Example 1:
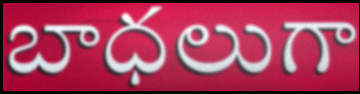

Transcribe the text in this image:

బాధలుగా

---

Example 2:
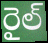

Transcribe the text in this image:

రైల్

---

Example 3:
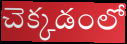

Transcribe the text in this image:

చెక్కడంలో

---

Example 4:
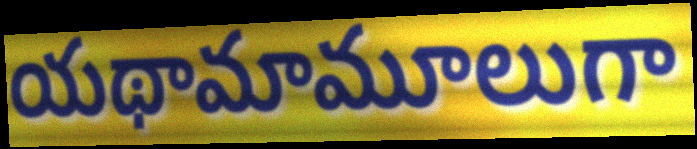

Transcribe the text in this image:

యథామామూలుగా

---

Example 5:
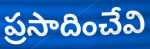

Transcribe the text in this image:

ప్రసాదించేవి